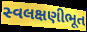
સ્વલક્ષણીભૂત